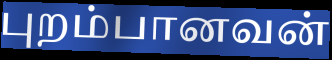
புறம்பானவன்